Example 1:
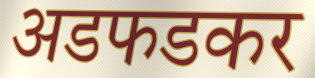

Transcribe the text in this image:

अडफडकर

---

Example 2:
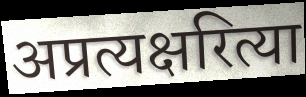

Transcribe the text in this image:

अप्रत्यक्षरित्या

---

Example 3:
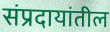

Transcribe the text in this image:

संप्रदायांतील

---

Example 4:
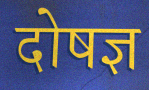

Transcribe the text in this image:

दोषज्ञ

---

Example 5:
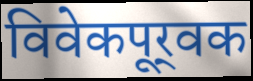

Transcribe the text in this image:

विवेकपूर्वक